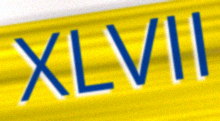
XLVII